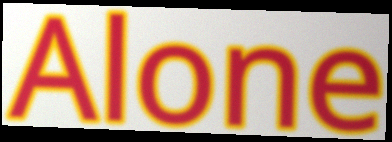
Alone